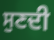
ਸੁਣਦੀ